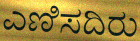
ಎಣಿಸದಿರು